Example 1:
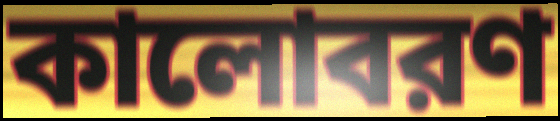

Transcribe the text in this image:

কালোবরণ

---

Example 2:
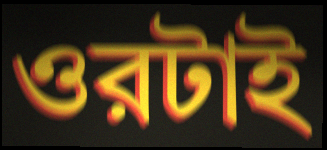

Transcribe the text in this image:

ওরটাই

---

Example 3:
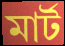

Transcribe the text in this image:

মার্ট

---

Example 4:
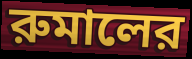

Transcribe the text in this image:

রুমালের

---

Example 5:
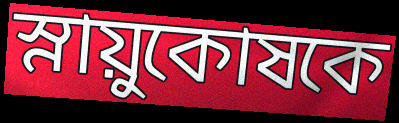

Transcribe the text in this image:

স্নায়ুকোষকে